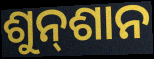
ଶୁନ୍‍ଶାନ